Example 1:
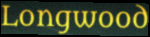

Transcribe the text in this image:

Longwood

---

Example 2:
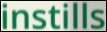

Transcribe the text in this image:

instills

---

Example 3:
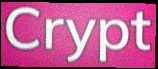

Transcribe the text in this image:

Crypt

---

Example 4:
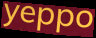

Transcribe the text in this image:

yeppo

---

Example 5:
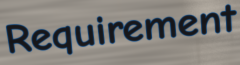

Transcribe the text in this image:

Requirement